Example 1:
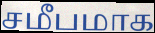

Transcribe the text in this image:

சமீபமாக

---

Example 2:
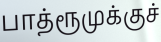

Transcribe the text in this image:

பாத்ரூமுக்குச்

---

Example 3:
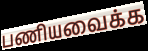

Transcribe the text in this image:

பணியவைக்க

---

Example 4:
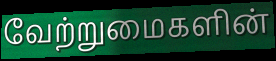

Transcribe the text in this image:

வேற்றுமைகளின்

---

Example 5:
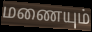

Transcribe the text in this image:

மணையும்